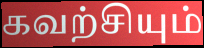
கவற்சியும்